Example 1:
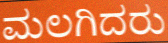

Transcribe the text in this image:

ಮಲಗಿದರು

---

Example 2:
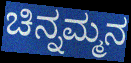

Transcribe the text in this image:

ಚಿನ್ನಮ್ಮನ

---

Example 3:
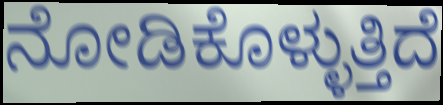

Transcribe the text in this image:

ನೋಡಿಕೊಳ್ಳುತ್ತಿದೆ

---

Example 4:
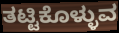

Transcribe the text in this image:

ತಟ್ಟಿಕೊಳ್ಳುವ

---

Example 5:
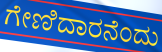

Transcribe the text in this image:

ಗೇಣಿದಾರನೆಂದು